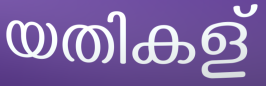
യതികള്